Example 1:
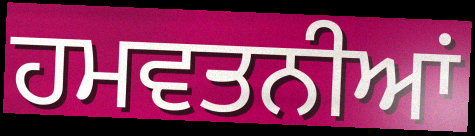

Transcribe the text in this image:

ਹਮਵਤਨੀਆਂ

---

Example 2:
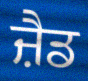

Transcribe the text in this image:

ਜ਼ੈਡ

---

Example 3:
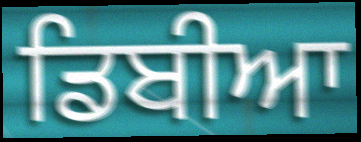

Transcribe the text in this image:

ਡਿਬੀਆ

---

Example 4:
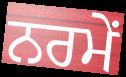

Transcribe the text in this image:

ਨਰਮੇਂ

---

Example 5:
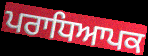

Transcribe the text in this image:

ਪਰਾਧਿਆਪਕ